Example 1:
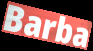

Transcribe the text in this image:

Barba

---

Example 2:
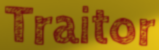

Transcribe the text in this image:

Traitor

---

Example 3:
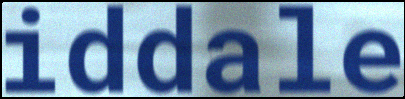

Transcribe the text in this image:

iddale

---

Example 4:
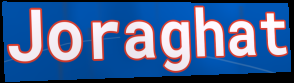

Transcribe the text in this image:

Joraghat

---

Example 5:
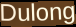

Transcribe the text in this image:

Dulong